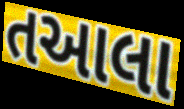
તઆલા